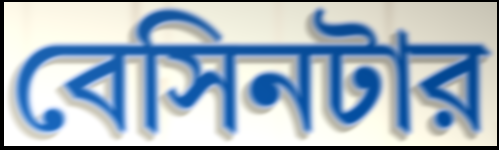
বেসিনটার